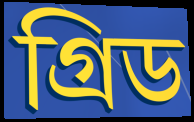
গ্রিড